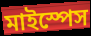
মাইস্পেস